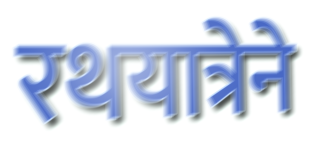
रथयात्रेने